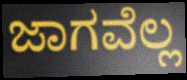
ಜಾಗವೆಲ್ಲ